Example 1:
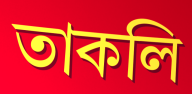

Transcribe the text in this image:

তাকলি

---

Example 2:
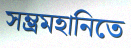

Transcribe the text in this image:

সম্ভ্রমহানিতে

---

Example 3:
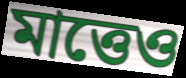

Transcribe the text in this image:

মাত্তেও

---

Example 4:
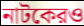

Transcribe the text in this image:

নাটকেরও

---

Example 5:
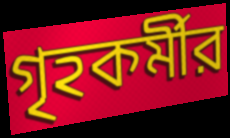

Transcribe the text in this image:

গৃহকর্মীর